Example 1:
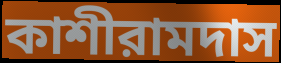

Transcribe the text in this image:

কাশীরামদাস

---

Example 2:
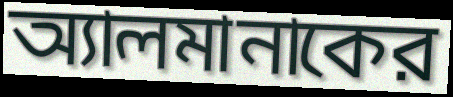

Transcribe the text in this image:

অ্যালমানাকের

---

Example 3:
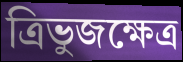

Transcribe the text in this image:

ত্রিভুজক্ষেত্র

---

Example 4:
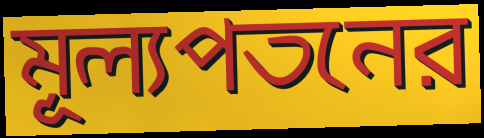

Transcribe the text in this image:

মূল্যপতনের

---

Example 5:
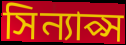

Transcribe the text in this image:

সিন্যাপ্স